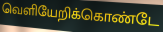
வெளியேறிக்கொண்டே